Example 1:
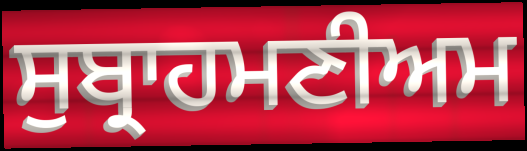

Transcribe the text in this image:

ਸੁਬ੍ਰਾਹਮਣੀਅਮ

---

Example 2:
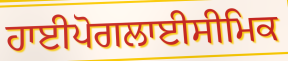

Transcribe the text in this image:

ਹਾਈਪੋਗਲਾਈਸੀਮਿਕ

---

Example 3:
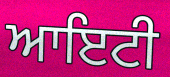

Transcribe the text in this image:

ਆਇਟੀ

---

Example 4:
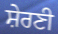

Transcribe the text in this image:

ਸ਼ੇਰਣੀ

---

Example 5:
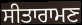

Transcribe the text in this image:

ਸੀਤਾਰਾਮਣ